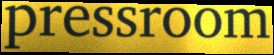
pressroom